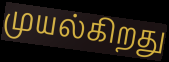
முயல்கிறது